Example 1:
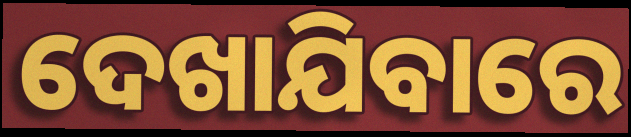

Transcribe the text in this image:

ଦେଖାଯିବାରେ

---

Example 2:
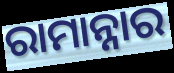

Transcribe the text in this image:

ରାମାନ୍ନାର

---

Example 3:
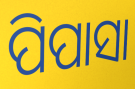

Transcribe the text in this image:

ପିପାସା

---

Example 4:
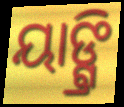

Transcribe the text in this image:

ୟାଙ୍ଗ୍ରି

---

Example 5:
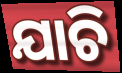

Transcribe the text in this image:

ଯାଚି